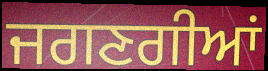
ਜਗਣਗੀਆਂ